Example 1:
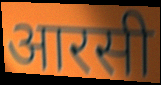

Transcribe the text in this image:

आरसी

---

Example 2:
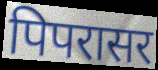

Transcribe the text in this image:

पिपरासर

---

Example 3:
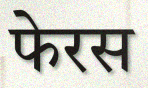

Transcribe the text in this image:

फेरस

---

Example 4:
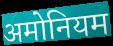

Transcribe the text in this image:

अमोनियम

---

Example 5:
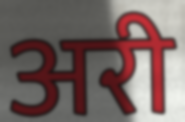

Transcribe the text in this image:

अरी